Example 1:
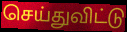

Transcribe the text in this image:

செய்துவிட்டு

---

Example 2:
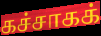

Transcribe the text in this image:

கச்சாகக்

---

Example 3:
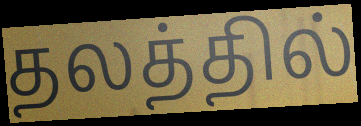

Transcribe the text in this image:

தலத்தில்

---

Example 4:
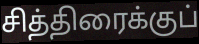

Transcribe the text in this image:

சித்திரைக்குப்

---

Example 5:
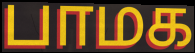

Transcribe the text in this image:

பாமக